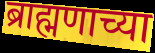
ब्राह्मणाच्या